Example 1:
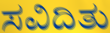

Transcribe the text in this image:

ಸವಿದಿತು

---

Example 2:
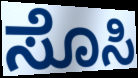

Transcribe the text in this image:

ಸೊಸಿ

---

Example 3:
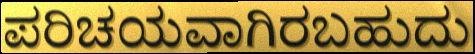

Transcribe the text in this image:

ಪರಿಚಯವಾಗಿರಬಹುದು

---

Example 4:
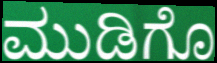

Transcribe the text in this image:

ಮುಡಿಗೊ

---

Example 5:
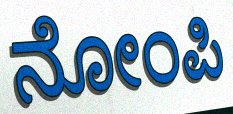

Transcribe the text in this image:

ನೋಂಪಿ